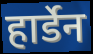
हार्डेन